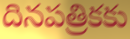
దినపత్రికకు